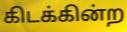
கிடக்கின்ற